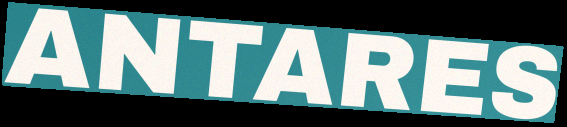
ANTARES